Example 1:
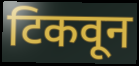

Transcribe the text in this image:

टिकवून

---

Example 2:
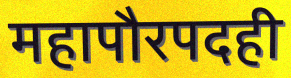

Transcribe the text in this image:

महापौरपदही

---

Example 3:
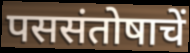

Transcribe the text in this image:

पससंतोषाचें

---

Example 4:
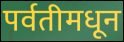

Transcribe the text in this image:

पर्वतीमधून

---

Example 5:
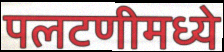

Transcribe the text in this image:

पलटणीमध्ये